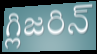
గ్లిజరిన్